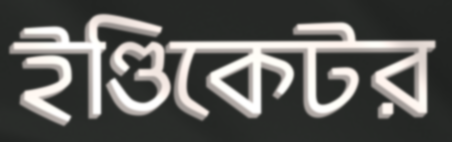
ইণ্ডিকেটর